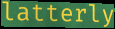
latterly